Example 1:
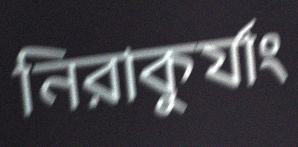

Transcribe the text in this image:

নিরাকুর্যাং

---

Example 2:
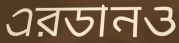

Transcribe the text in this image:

এরডানও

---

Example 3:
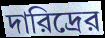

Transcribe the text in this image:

দারিদ্রের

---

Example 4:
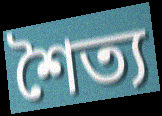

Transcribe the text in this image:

শৈত্য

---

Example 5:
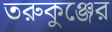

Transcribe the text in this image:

তরুকুঞ্জের